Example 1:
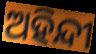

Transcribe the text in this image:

ଅହିନ୍ଦୀ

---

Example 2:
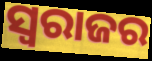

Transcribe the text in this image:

ସ୍ୱରାଜର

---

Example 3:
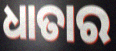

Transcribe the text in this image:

ଧାତାର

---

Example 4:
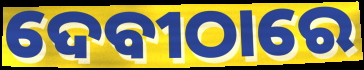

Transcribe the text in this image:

ଦେବୀଠାରେ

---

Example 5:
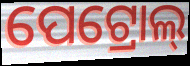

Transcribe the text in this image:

ପେଟ୍ରୋଲ୍